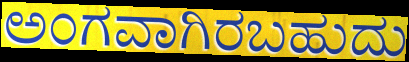
ಅಂಗವಾಗಿರಬಹುದು